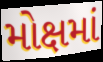
મોક્ષમાં